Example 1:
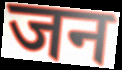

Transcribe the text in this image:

जन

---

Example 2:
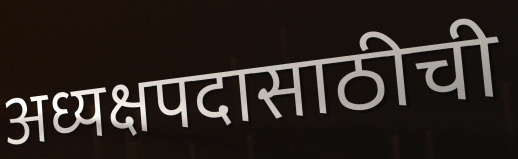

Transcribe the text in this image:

अध्यक्षपदासाठीची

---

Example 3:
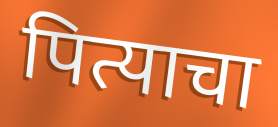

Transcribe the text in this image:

पित्याचा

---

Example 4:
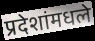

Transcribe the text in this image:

प्रदेशांमधले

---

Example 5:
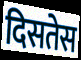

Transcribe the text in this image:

दिसतेस